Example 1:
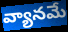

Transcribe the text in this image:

వ్యానమే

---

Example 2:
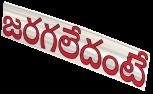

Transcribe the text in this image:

జరగలేదంటే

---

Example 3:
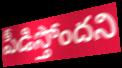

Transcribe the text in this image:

పీడిస్తోందని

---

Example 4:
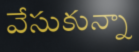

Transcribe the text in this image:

వేసుకున్నా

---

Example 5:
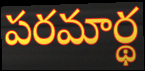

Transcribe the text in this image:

పరమార్థ